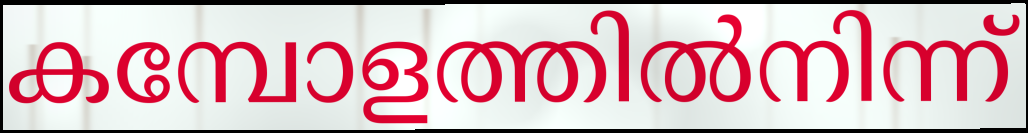
കമ്പോളത്തിൽനിന്ന്